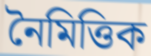
নৈমিত্তিক